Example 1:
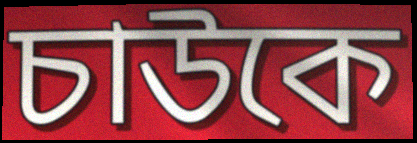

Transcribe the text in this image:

চাউকে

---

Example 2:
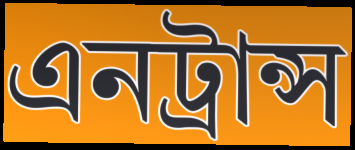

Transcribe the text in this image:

এনট্রান্স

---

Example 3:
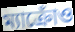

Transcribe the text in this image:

ম্যাক্রোঁও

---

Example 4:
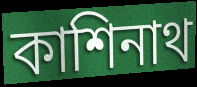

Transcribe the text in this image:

কাশিনাথ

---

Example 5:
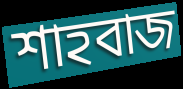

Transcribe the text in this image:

শাহবাজ